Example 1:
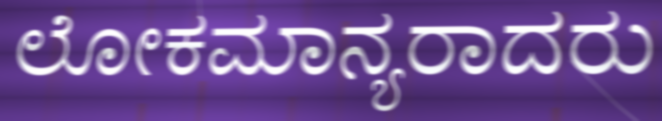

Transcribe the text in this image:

ಲೋಕಮಾನ್ಯರಾದರು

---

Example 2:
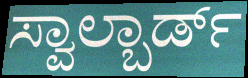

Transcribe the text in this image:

ಸ್ವಾಲ್ಬಾರ್ಡ್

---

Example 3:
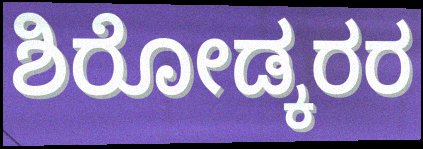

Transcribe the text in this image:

ಶಿರೋಡ್ಕರರ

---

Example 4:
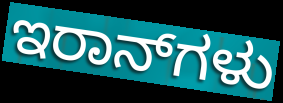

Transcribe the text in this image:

ಇರಾನ್‌ಗಳು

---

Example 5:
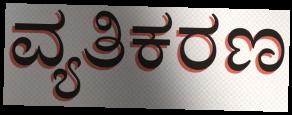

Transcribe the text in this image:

ವ್ಯತಿಕರಣ